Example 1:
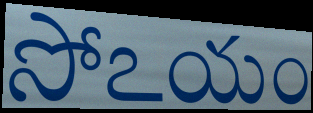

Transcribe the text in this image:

సోఽయం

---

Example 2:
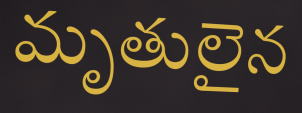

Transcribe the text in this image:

మృతులైన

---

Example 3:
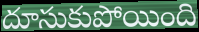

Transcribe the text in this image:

దూసుకుపోయింది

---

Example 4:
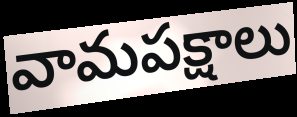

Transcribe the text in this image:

వామపక్షాలు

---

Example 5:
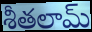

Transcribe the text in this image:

శీతలామ్